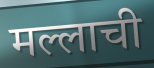
मल्लाची